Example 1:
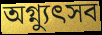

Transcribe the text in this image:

অগ্ন্যুৎসব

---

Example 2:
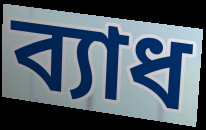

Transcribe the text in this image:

ব্যাধ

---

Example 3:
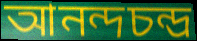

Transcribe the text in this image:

আনন্দচন্দ্র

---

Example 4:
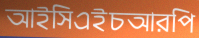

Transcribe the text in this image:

আইসিএইচআরপি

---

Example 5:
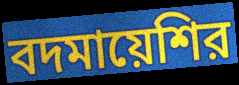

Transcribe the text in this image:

বদমায়েশির